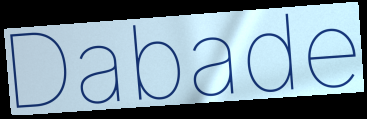
Dabade